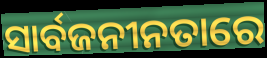
ସାର୍ବଜନୀନତାରେ